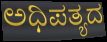
ಅಧಿಪತ್ಯದ